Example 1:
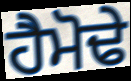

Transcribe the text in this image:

ਹੈਮੋਢੇ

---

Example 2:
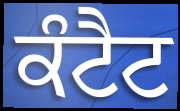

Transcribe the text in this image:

ਕੰਟੈਟ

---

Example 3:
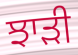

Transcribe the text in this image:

ਝਾੜੀ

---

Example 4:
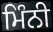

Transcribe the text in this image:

ਮਿੰਨੀ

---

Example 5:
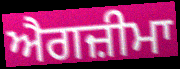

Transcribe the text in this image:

ਐਗਜ਼ੀਮਾ